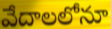
వేదాలలోనూ